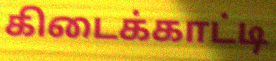
கிடைக்காட்டி